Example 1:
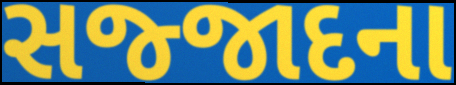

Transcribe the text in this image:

સજ્જાદના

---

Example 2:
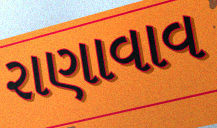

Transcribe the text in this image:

રાણાવાવ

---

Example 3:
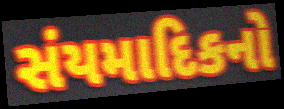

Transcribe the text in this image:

સંયમાદિકનો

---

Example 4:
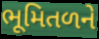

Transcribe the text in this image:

ભૂમિતળને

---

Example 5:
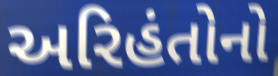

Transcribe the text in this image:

અરિહંતોનો